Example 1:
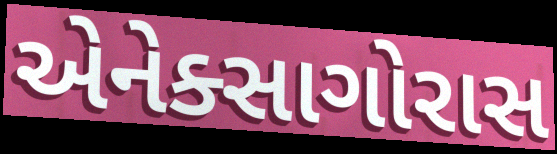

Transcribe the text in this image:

એનેક્સાગોરાસ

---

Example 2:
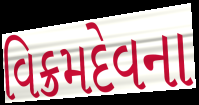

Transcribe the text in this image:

વિક્રમદેવના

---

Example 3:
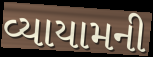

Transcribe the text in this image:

વ્યાયામની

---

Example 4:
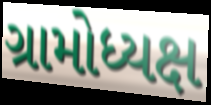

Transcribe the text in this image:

ગ્રામોધ્યક્ષ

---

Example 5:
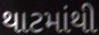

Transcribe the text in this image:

થાટમાંથી